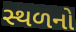
સ્થળનો